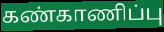
கண்காணிப்பு